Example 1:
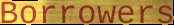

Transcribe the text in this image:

Borrowers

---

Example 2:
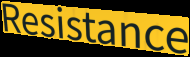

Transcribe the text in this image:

Resistance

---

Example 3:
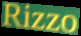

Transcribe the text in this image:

Rizzo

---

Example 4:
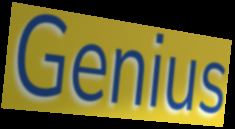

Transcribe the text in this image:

Genius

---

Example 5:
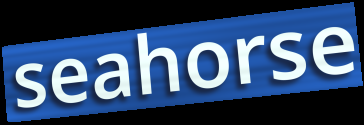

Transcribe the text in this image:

seahorse